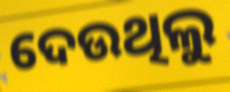
ଦେଉଥିଲୁ